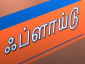
ஃப்ளாய்டு